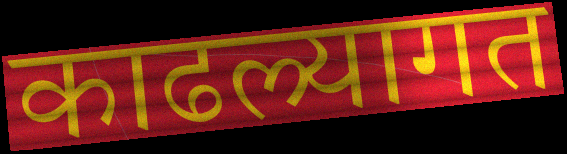
काढल्यागत